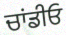
ਚਾਂਡੀਓ